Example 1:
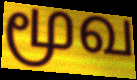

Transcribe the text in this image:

மூவ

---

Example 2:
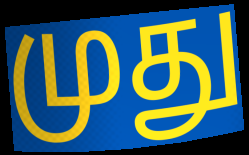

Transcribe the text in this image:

முது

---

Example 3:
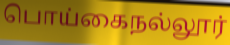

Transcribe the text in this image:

பொய்கைநல்லூர்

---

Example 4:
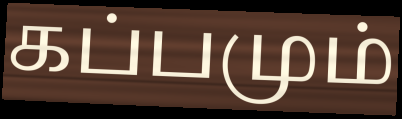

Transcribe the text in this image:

கப்பமும்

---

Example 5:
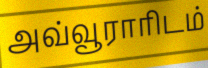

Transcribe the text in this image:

அவ்வூராரிடம்